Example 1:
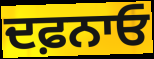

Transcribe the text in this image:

ਦਫ਼ਨਾਓ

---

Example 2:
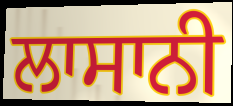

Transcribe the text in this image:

ਲਾਸਾਨੀ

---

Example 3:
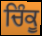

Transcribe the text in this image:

ਚਿੰਕੂ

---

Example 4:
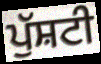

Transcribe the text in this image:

ਪੁੱਸ਼ਟੀ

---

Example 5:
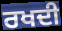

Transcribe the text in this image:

ਰਖਦੀ